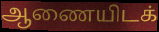
ஆணையிடக்